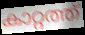
കാറ്റത്ത്